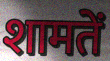
शामतें